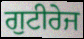
ਗੁਟੀਰੇਜ